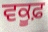
ਵਕੂਫ਼